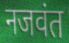
नजवंत